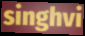
singhvi